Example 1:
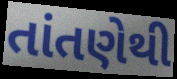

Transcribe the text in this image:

તાંતણેથી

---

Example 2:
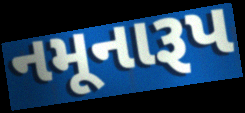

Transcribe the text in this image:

નમૂનારૂપ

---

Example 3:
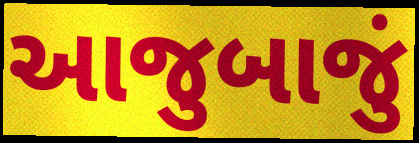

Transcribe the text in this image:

આજુબાજું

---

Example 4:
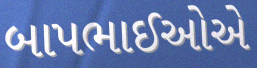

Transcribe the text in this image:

બાપભાઈઓએ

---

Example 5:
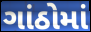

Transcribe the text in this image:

ગાંઠોમાં